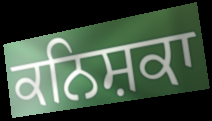
ਕਨਿਸ਼ਕਾ